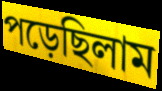
পড়েছিলাম